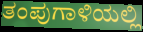
ತಂಪುಗಾಳಿಯಲ್ಲಿ